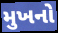
મુખનો